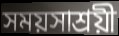
সময়সাশ্রয়ী